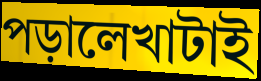
পড়ালেখাটাই